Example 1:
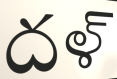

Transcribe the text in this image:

దళ్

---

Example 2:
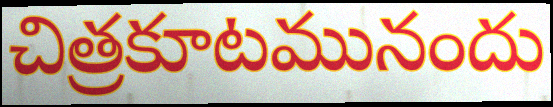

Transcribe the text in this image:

చిత్రకూటమునందు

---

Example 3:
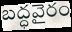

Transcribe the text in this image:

బద్ధవైరం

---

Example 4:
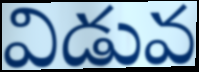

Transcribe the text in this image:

విడువ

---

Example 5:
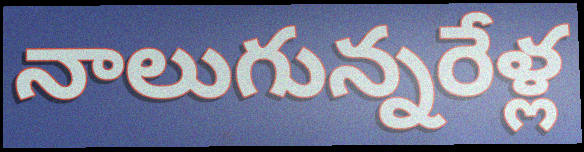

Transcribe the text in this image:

నాలుగున్నరేళ్ల